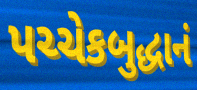
પચ્ચેકબુદ્ધાનં